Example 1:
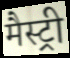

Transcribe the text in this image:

मैस्ट्री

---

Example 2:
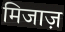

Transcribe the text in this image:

मिजाज़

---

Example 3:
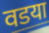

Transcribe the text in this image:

वडया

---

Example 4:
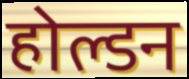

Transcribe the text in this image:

होल्डन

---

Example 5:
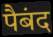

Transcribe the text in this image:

पैबंद